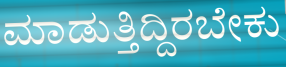
ಮಾಡುತ್ತಿದ್ದಿರಬೇಕು